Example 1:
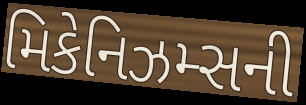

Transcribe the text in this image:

મિકેનિઝમ્સની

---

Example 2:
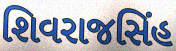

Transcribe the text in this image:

શિવરાજસિંહ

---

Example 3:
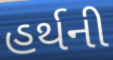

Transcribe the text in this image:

હર્થની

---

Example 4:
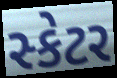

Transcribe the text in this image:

સ્કેટર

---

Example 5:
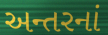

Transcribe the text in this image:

અન્તરનાં